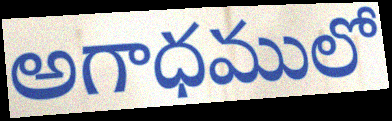
అగాధములో